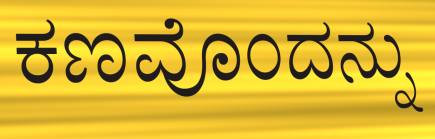
ಕಣವೊಂದನ್ನು